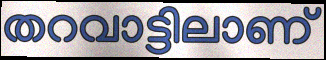
തറവാട്ടിലാണ്